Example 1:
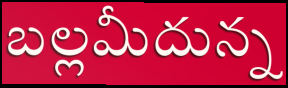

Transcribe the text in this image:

బల్లమీదున్న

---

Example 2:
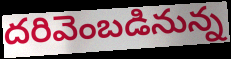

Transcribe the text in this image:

దరివెంబడినున్న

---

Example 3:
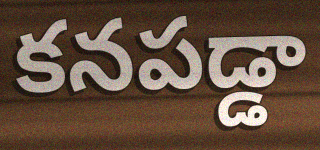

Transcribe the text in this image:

కనపడ్డా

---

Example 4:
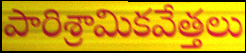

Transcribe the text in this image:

పారిశ్రామికవేత్తలు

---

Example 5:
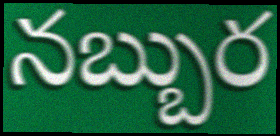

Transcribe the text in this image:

నబ్బుర